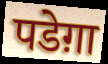
पडेग़ा